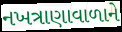
નખત્રાણાવાળાને